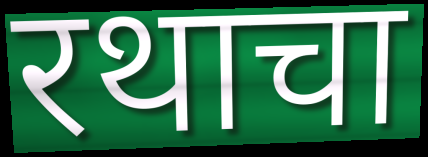
रथाचा